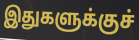
இதுகளுக்குச்